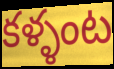
కళ్ళంట